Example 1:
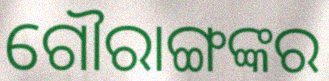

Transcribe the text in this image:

ଗୌରାଙ୍ଗଙ୍କର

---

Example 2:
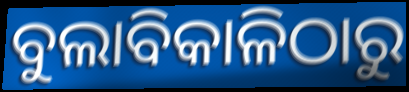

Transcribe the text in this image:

ବୁଲାବିକାଳିଠାରୁ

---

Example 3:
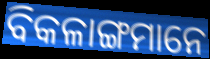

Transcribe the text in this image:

ବିକଳାଙ୍ଗମାନେ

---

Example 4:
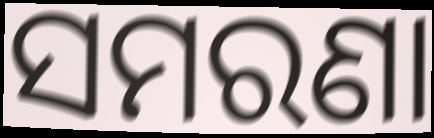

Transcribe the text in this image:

ସମରଣା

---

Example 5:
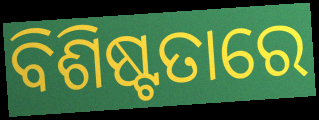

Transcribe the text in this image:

ବିଶିଷ୍ଟତାରେ